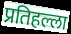
प्रतिहल्ला